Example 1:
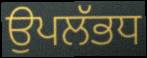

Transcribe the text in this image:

ਉਪਲੱਭਧ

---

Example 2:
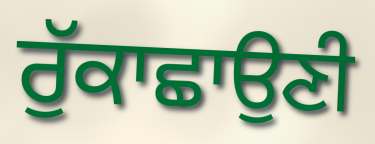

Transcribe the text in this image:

ਰੁੱਕਾਛਾਉਣੀ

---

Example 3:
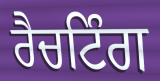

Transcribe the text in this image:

ਰੈਚਟਿੰਗ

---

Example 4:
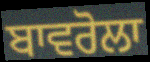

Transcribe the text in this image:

ਬਾਵਰੋਲਾ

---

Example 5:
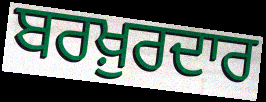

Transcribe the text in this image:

ਬਰਖ਼ੁਰਦਾਰ